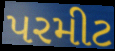
પરમીટ